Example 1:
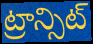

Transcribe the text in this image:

ట్రాన్సిట్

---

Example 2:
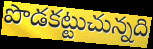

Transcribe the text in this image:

పొడకట్టుచున్నది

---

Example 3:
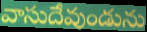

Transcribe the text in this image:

వాసుదేవుండును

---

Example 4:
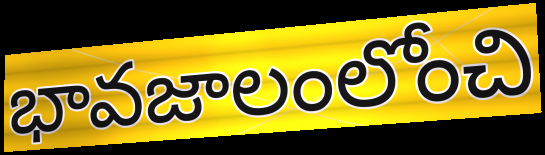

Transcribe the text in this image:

భావజాలంలోంచి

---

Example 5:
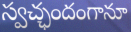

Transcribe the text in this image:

స్వచ్ఛందంగానూ